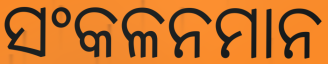
ସଂକଳନମାନ